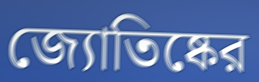
জ্যোতিষ্কের